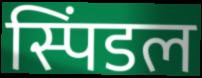
स्पिंडल